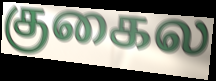
குகைல